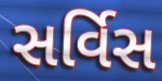
સર્વિસ